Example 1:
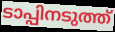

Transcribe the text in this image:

ടാപ്പിനടുത്ത്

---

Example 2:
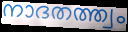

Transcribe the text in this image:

നാദതത്ത്വം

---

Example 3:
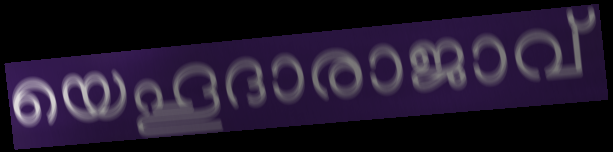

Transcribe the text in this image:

യെഹൂദാരാജാവ്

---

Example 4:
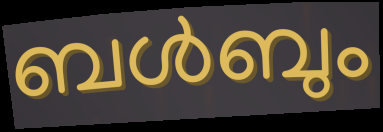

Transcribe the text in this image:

ബൾബും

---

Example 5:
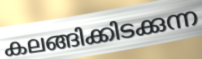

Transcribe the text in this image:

കലങ്ങിക്കിടക്കുന്ന